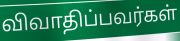
விவாதிப்பவர்கள்